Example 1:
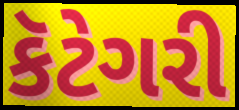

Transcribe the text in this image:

કૅટેગરી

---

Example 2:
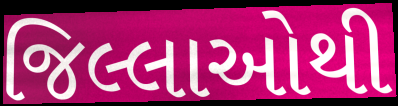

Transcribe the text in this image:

જિલ્લાઓથી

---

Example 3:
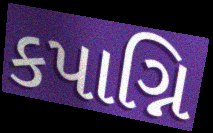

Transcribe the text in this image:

કપાગ્નિ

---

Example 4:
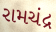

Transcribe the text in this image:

રામચંદ્ર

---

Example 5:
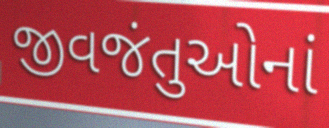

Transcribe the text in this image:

જીવજંતુઓનાં